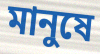
মানুষে